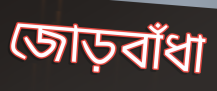
জোড়বাঁধা